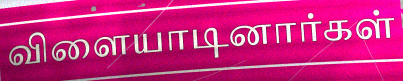
விளையாடினார்கள்